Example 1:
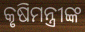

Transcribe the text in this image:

କୃଷିମନ୍ତ୍ରୀଙ୍କ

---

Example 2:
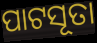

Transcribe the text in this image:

ପାଟସୂତା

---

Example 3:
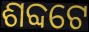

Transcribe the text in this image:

ଶବ୍ଦଟେ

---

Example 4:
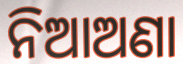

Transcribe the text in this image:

ନିଆଅଣା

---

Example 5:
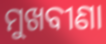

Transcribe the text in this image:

ମୁଖବୀଣା